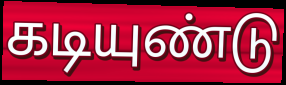
கடியுண்டு